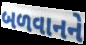
બળવાનને